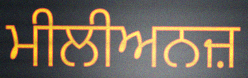
ਮੀਲੀਅਨਜ਼